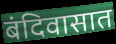
बंदिवासात